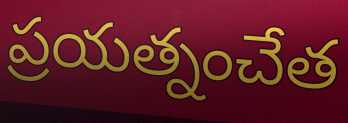
ప్రయత్నంచేత